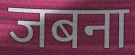
जबना